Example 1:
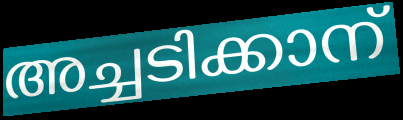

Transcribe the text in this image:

അച്ചടിക്കാന്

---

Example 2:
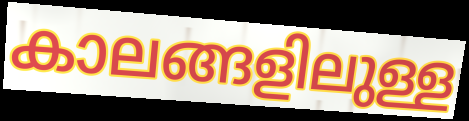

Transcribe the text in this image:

കാലങ്ങളിലുള്ള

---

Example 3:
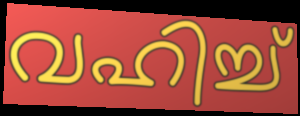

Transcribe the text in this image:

വഹിച്ച്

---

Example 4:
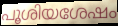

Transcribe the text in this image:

പൂശിയശേഷം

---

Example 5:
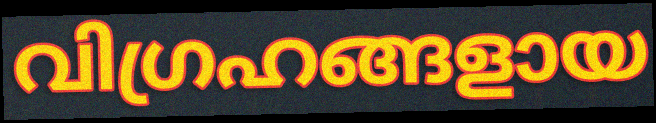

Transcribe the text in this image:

വിഗ്രഹങ്ങളായ